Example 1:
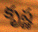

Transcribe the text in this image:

కృష్ణ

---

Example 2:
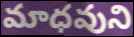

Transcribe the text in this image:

మాధవుని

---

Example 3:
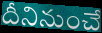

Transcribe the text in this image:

దీనినుంచే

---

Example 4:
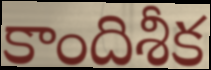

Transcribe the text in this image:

కాందిశీక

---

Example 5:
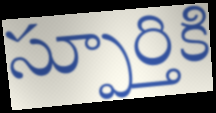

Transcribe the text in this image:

స్పూర్తికి